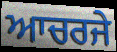
ਆਚਰਜੇ